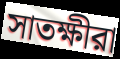
সাতক্ষীরা